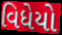
વિધેયો